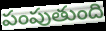
పంపుతుంది